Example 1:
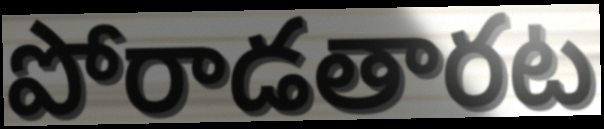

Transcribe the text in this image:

పోరాడతారట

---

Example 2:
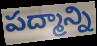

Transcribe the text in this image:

పద్మాన్ని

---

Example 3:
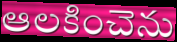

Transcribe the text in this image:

ఆలకించెను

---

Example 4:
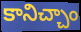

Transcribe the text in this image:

కానిచ్చాం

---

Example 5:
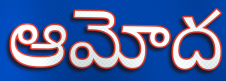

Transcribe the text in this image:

ఆమోద